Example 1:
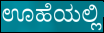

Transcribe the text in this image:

ಊಹೆಯಲ್ಲಿ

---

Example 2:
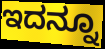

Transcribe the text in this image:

ಇದನ್ನೂ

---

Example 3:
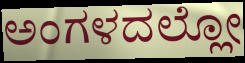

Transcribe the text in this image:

ಅಂಗಳದಲ್ಲೋ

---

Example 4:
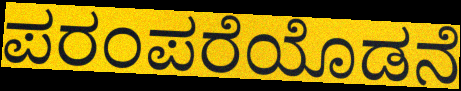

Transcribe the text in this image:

ಪರಂಪರೆಯೊಡನೆ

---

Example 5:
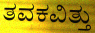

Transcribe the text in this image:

ತವಕವಿತ್ತು